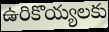
ఉరికొయ్యలకు